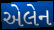
એલેન